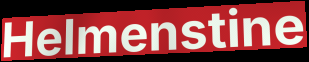
Helmenstine